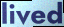
lived